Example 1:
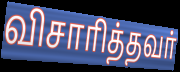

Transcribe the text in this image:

விசாரித்தவர்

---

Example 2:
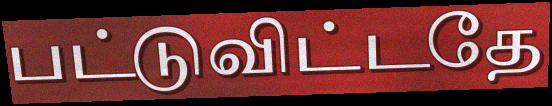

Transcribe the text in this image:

பட்டுவிட்டதே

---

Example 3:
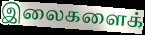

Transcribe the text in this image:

இலைகளைக்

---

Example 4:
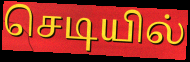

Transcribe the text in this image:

செடியில்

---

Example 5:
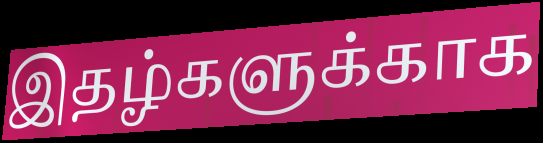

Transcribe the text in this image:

இதழ்களுக்காக